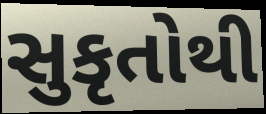
સુકૃતોથી